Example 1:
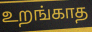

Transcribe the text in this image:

உறங்காத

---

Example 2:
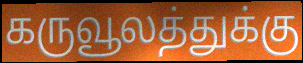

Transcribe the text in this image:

கருவூலத்துக்கு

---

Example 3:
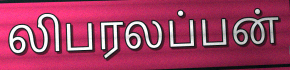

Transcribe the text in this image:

லிபரலப்பன்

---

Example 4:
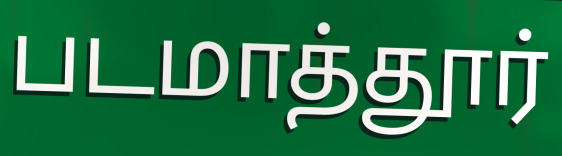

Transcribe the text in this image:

படமாத்தூர்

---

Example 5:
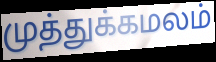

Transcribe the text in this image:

முத்துக்கமலம்